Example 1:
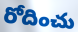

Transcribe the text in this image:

రోదించు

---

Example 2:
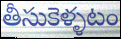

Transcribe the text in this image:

తీసుకెళ్ళటం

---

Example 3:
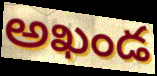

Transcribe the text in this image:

అఖండ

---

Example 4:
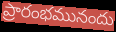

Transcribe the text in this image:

ప్రారంభమునందు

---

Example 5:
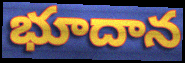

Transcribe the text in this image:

భూదాన